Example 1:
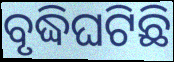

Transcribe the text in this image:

ବୃଦ୍ଧିଘଟିଛି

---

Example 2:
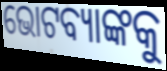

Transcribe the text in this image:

ଭୋଟବ୍ୟାଙ୍କକୁ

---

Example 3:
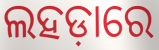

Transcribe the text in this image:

ଲହଡ଼ାରେ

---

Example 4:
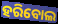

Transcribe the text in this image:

ହରିବୋଲ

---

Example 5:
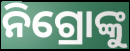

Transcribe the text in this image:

ନିଗ୍ରୋଙ୍କୁ